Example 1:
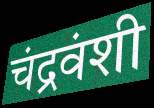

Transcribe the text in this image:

चंद्रवंशी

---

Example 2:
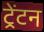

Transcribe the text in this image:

ट्रेंटन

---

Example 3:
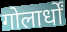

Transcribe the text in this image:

गोलार्धों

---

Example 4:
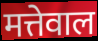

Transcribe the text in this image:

मत्तेवाल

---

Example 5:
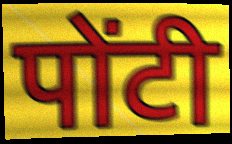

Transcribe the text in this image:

पोंटी